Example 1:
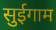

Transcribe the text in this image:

सुईगाम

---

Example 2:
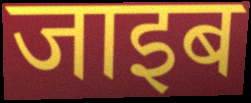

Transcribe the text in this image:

जाइब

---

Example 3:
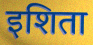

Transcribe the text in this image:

इशिता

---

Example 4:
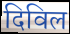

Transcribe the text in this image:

दिविल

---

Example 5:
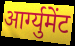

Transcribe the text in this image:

आर्ग्युमेंट